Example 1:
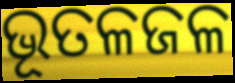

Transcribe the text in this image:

ଭୂତଳଜଳ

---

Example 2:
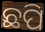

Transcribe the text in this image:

ଛପି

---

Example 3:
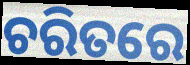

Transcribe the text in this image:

ଚରିତରେ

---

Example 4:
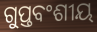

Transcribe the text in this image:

ଗୁପ୍ତବଂଶୀୟ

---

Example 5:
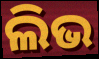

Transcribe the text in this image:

ଲିଭ